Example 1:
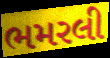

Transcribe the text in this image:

ભમરલી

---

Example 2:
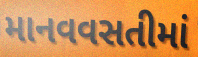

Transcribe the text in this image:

માનવવસતીમાં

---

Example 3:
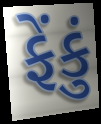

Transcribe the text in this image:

ફેંકું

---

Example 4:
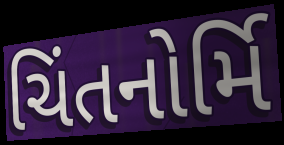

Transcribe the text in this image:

ચિંતનોર્મિ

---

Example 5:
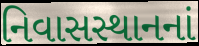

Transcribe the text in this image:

નિવાસસ્થાનનાં